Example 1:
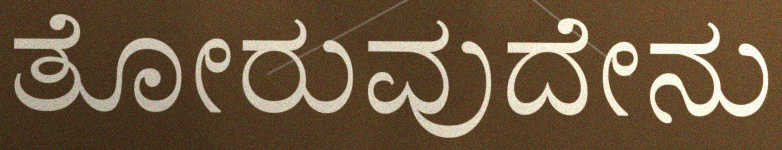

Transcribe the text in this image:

ತೋರುವುದೇನು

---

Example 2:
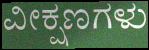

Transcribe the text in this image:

ವೀಕ್ಷಣಗಳು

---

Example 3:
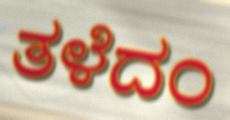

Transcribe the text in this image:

ತಳೆದಂ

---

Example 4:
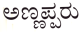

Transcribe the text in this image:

ಅಣ್ಣಪ್ಪರು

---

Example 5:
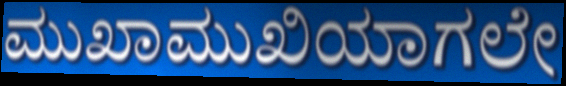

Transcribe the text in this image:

ಮುಖಾಮುಖಿಯಾಗಲೇ